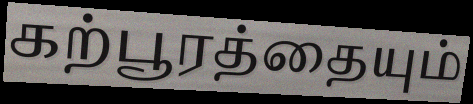
கற்பூரத்தையும்